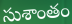
సుశాంతం